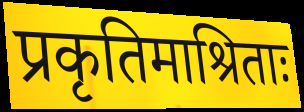
प्रकृतिमाश्रिताः